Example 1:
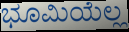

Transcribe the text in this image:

ಭೂಮಿಯೆಲ್ಲ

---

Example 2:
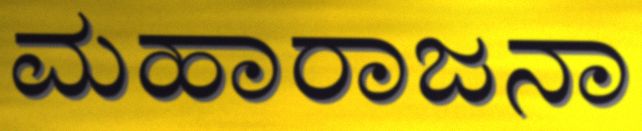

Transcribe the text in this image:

ಮಹಾರಾಜನಾ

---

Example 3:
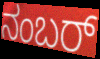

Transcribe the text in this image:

ನಂಬರ್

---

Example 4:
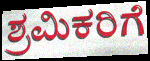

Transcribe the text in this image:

ಶ್ರಮಿಕರಿಗೆ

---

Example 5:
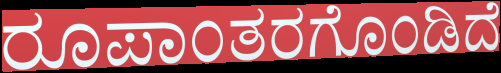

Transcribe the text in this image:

ರೂಪಾಂತರಗೊಂಡಿದೆ